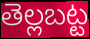
తెల్లబట్ట